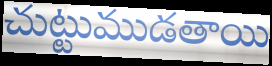
చుట్టుముడతాయి